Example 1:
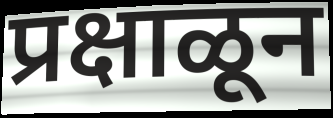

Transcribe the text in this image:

प्रक्षाळून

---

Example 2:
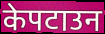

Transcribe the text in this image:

केपटाउन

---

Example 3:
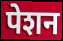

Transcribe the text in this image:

पेशन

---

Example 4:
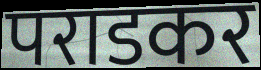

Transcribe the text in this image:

पराडकर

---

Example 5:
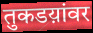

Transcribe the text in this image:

तुकडय़ांवर